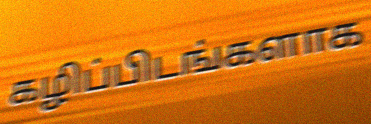
கழிப்பிடங்களாக